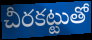
చీరకట్టుతో